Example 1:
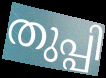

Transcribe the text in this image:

തുപ്പി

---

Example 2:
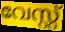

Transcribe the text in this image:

വേസ്റ്റ്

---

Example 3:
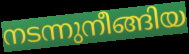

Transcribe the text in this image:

നടന്നുനീങ്ങിയ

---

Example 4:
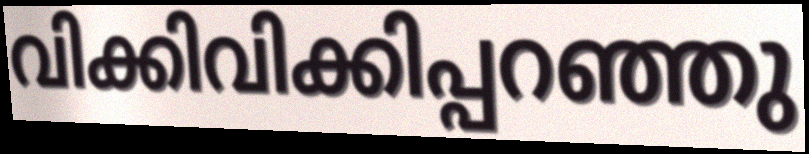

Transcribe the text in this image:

വിക്കിവിക്കിപ്പറഞ്ഞു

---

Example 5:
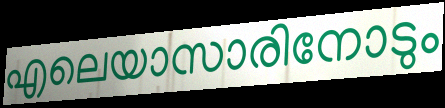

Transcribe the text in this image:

എലെയാസാരിനോടും